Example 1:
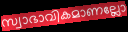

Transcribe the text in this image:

സ്വാഭാവികമാണല്ലോ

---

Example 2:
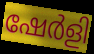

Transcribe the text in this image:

ഷേർളി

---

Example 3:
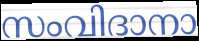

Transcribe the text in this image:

സംവിദാനാ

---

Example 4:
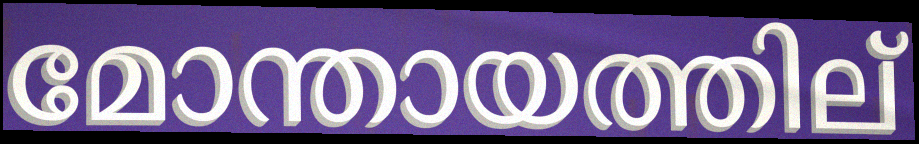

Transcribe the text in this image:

മോന്തായത്തില്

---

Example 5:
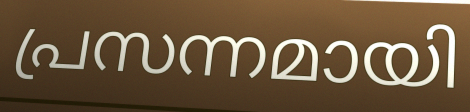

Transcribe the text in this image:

പ്രസന്നമായി